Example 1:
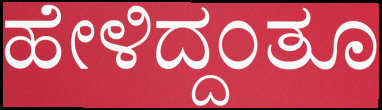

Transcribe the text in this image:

ಹೇಳಿದ್ದಂತೂ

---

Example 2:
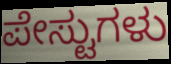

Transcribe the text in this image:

ಪೇಸ್ಟುಗಳು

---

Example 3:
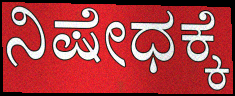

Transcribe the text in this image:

ನಿಷೇಧಕ್ಕೆ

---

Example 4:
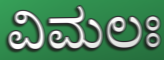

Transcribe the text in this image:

ವಿಮಲಃ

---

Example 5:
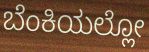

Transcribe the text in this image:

ಬೆಂಕಿಯಲ್ಲೋ